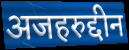
अजहरुद्दीन